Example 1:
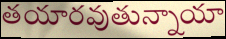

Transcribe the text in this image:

తయారవుతున్నాయా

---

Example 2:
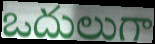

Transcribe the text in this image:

ఒదులుగా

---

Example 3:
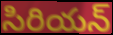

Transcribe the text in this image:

సిరియన్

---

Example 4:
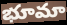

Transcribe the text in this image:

భూమా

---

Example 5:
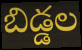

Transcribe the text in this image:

బిడ్డల